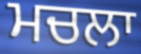
ਮਚਲਾ